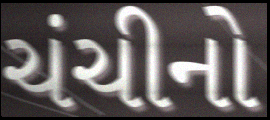
ચંચીનો